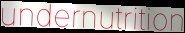
undernutrition